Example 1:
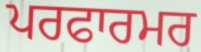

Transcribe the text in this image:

ਪਰਫਾਰਮਰ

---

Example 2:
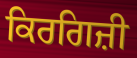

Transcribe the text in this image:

ਕਿਰਗਿਜ਼ੀ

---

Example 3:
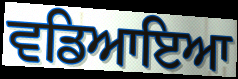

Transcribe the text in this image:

ਵਡਿਆਇਆ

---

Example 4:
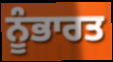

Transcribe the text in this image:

ਨੂੰਭਾਰਤ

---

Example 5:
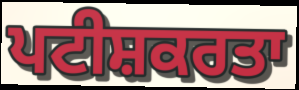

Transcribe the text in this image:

ਪਟੀਸ਼ਕਰਤਾ